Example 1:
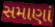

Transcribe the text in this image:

સમાણાં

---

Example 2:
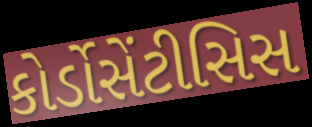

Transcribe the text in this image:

કોર્ડોસેંટીસિસ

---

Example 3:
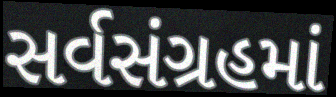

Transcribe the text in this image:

સર્વસંગ્રહમાં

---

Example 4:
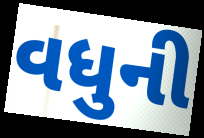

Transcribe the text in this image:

વધુની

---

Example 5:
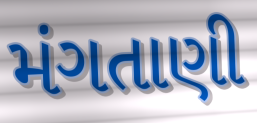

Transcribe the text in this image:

મંગતાણી